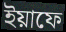
ইয়াফে